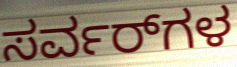
ಸರ್ವರ್‌ಗಳ